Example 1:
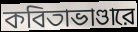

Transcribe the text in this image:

কবিতাভাণ্ডারে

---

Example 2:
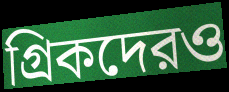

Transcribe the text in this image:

গ্রিকদেরও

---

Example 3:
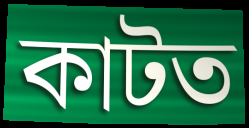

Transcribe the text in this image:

কাটত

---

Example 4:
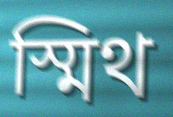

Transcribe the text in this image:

স্মিথ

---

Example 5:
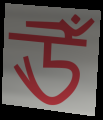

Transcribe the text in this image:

ঊঁ